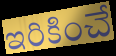
ఇరికించే